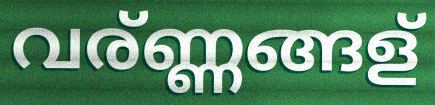
വര്ണ്ണങ്ങള്